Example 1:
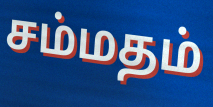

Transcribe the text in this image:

சம்மதம்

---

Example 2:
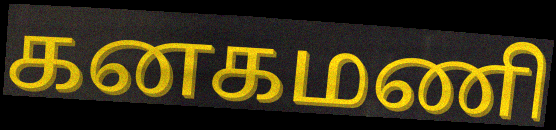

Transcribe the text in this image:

கனகமணி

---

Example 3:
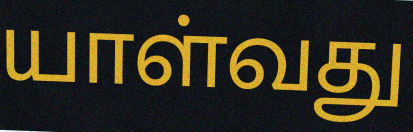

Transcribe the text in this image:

யாள்வது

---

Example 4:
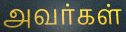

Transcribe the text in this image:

அவர்கள்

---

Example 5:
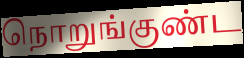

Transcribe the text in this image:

நொறுங்குண்ட